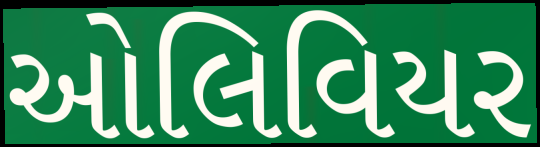
ઓલિવિયર